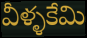
వీళ్ళకేమి